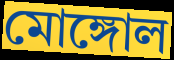
মোঙ্গোল